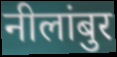
नीलांबुर